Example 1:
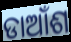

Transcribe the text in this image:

ଡାଆଁଶ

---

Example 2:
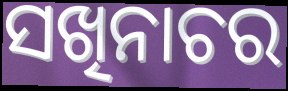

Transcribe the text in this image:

ସଖିନାଚର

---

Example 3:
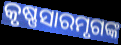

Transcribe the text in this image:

କୃଷ୍ଣସାରମୃଗଙ୍କ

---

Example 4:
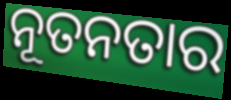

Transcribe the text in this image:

ନୂତନତାର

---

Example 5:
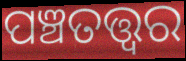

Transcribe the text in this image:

ପଞ୍ଚତତ୍ତ୍ୱର